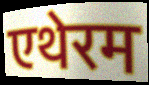
एथेरम